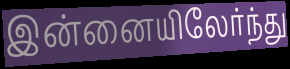
இன்னையிலேர்ந்து